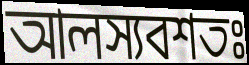
আলস্যবশতঃ